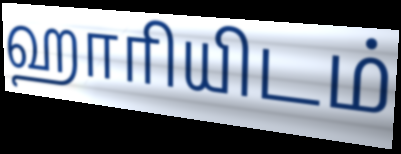
ஹாரியிடம்